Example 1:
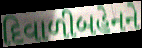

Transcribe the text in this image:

દિવાળીબહેનને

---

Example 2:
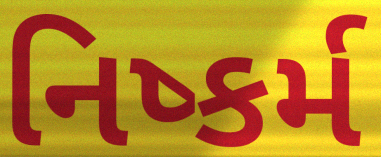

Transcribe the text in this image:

નિષ્કર્મ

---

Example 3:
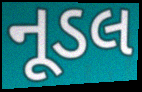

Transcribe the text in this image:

નૂડલ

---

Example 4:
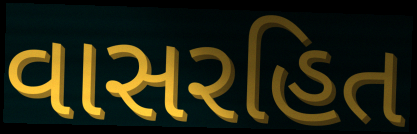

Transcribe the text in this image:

વાસરહિત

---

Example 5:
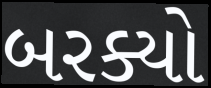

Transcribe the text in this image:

બરક્યો